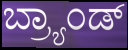
ಬ್ರ್ಯಾಂಡ್